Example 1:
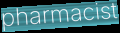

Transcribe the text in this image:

pharmacist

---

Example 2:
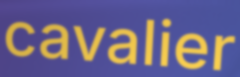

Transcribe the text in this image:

cavalier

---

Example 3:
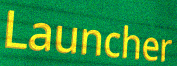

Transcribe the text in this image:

Launcher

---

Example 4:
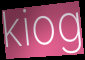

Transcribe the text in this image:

kiog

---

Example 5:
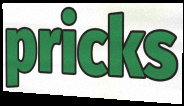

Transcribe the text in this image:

pricks